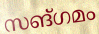
സങ്ഗമം